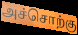
அச்சொற்கு